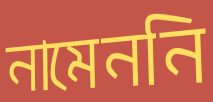
নামেননি